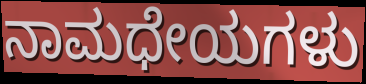
ನಾಮಧೇಯಗಳು